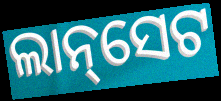
ଲାନ୍‌ସେଟ